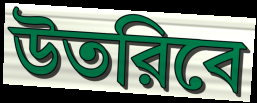
উতরিবে